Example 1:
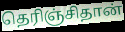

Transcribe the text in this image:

தெரிஞ்சிதான்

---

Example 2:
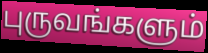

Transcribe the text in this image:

புருவங்களும்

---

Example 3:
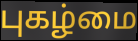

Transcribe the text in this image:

புகழ்மை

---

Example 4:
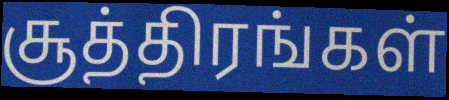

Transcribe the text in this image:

சூத்திரங்கள்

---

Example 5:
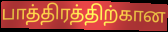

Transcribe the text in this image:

பாத்திரத்திற்கான